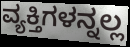
ವ್ಯಕ್ತಿಗಳನ್ನಲ್ಲ